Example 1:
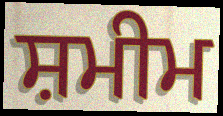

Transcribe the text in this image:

ਸ਼ਮੀਮ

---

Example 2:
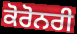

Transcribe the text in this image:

ਕੋਰੋਨਰੀ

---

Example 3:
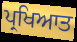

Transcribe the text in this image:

ਪ੍ਰਖਿਆਤ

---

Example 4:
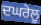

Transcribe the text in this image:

ਦਘਰੇਲੂ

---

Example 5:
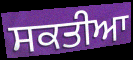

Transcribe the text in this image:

ਸਕਤੀਆ